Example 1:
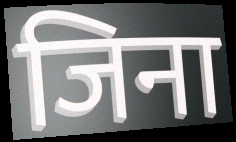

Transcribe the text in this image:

जिना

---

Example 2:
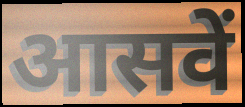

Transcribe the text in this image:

आसवें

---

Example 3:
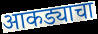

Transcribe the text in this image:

आकड्याचा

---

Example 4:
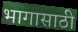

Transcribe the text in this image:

भागासाठी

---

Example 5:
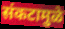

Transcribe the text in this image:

संकटामुळे